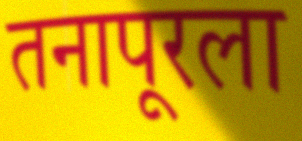
तनापूरला